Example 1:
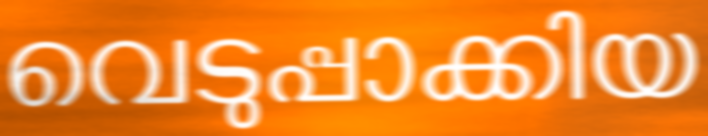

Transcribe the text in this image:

വെടുപ്പാക്കിയ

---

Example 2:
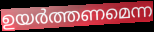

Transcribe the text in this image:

ഉയർത്തണമെന്ന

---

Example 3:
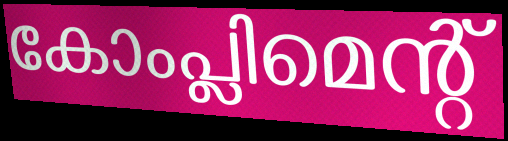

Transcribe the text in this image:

കോംപ്ലിമെന്റ്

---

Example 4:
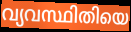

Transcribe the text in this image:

വ്യവസ്ഥിതിയെ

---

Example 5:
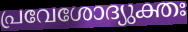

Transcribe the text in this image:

പ്രവേശോദ്യുക്തഃ